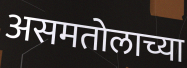
असमतोलाच्या